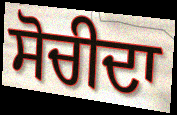
ਸੋਚੀਦਾ